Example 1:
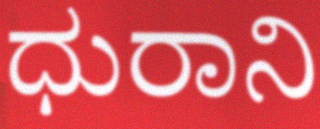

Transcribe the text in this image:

ಧುರಾನಿ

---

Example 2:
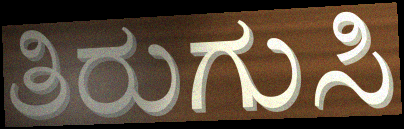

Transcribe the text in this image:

ತಿರುಗುಸಿ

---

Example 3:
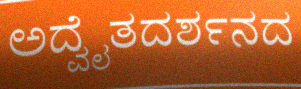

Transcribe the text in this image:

ಅದ್ವೈತದರ್ಶನದ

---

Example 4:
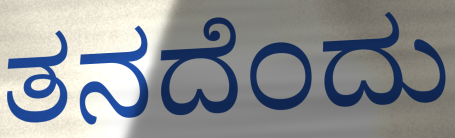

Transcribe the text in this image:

ತನದೆಂದು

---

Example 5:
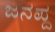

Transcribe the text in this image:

ಜನಪ್ದ